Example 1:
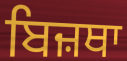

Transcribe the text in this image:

ਬਿਜ਼ਥਾ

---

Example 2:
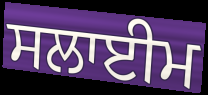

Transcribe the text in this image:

ਸਲਾਈਮ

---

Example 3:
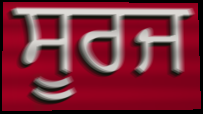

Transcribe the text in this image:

ਸੂਰਜ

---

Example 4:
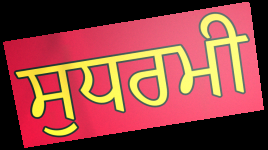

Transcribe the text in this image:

ਸੁਧਰਮੀ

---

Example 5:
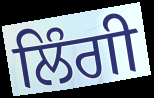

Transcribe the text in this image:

ਲਿੰਗੀ